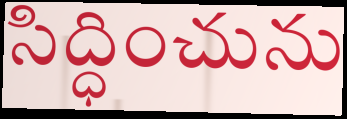
సిద్ధించును